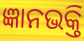
ଜ୍ଞାନଭକ୍ତି